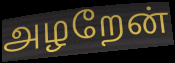
அழறேன்